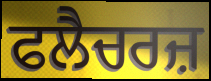
ਫਲੈਚਰਜ਼